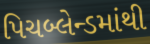
પિચબ્લેન્ડમાંથી